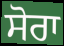
ਸੋਰਾ